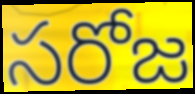
సరోజ